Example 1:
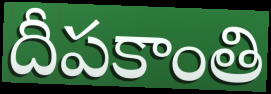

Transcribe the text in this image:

దీపకాంతి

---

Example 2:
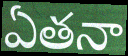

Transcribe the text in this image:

ఏతనా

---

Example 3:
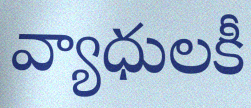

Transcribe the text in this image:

వ్యాధులకీ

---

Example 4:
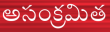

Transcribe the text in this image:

అసంక్రమిత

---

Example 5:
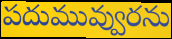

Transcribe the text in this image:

పదుమువ్వురను